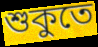
শুকুতে